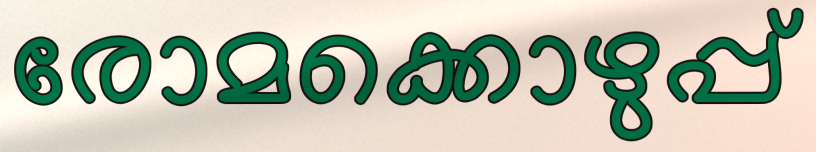
രോമക്കൊഴുപ്പ്